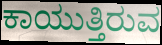
ಕಾಯುತ್ತಿರುವ